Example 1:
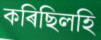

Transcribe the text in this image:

কৰিছিলহি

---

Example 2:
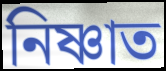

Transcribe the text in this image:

নিষ্ণাত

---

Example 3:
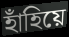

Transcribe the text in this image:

হাঁহিয়ে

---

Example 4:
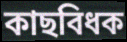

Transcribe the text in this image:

কাছবিধক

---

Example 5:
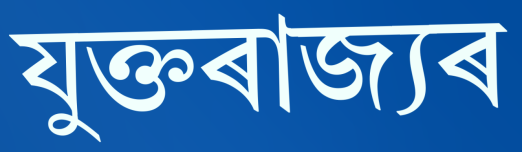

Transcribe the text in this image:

যুক্তৰাজ্যৰ